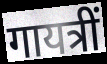
गायत्रीं